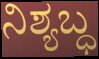
ನಿಶ್ಯಬ್ಧ